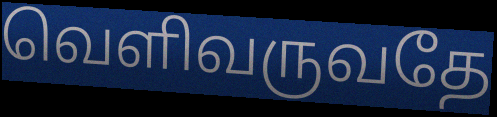
வெளிவருவதே